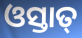
ଓସ୍ତାତ୍